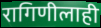
रागिणीलाही